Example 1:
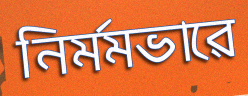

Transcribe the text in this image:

নিৰ্মমভাৱে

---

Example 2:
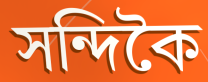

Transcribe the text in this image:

সন্দিকৈ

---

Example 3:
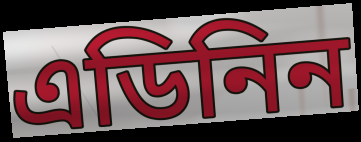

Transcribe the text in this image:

এডিনিন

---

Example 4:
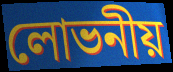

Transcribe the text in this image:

লোভনীয়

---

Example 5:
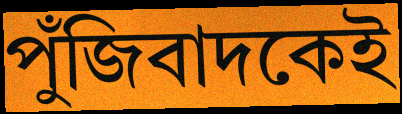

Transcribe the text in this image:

পুঁজিবাদকেই